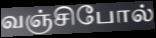
வஞ்சிபோல்